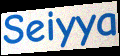
Seiyya